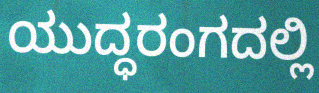
ಯುದ್ಧರಂಗದಲ್ಲಿ